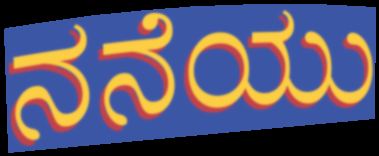
ನನೆಯು